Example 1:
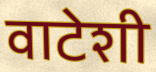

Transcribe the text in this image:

वाटेशी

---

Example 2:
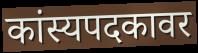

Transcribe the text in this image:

कांस्यपदकावर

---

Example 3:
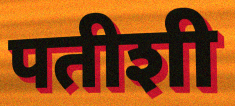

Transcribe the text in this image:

पतीशी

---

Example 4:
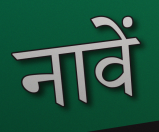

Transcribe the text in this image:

नावें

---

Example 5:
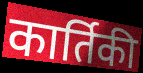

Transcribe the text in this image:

कार्तिकी